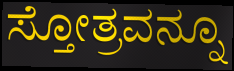
ಸ್ತೋತ್ರವನ್ನೂ